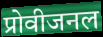
प्रोवीजनल